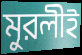
মুরলীই